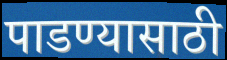
पाडण्यासाठी